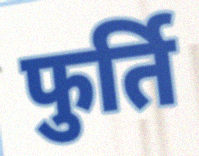
फुर्ति